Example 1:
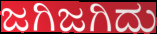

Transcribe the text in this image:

ಜಗಿಜಗಿದು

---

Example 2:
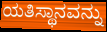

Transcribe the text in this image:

ಯತಿಸ್ಥಾನವನ್ನು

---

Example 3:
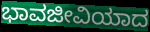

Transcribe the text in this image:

ಭಾವಜೀವಿಯಾದ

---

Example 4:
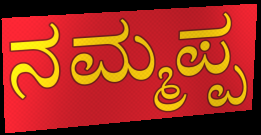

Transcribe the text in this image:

ನಮ್ಮಪ್ಪ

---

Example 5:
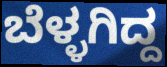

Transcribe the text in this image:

ಬೆಳ್ಳಗಿದ್ದ